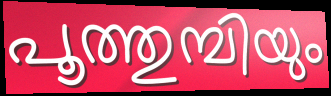
പൂത്തുമ്പിയും